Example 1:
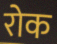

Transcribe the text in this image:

रोक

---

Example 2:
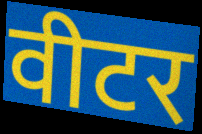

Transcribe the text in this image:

वीटर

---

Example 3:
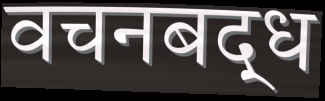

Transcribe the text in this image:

वचनबद्ध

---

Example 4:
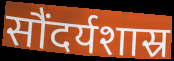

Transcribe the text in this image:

सौंदर्यशास्र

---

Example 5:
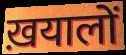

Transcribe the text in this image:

ख़यालों